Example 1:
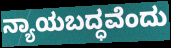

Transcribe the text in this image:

ನ್ಯಾಯಬದ್ಧವೆಂದು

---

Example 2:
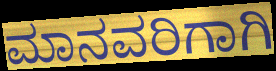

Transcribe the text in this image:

ಮಾನವರಿಗಾಗಿ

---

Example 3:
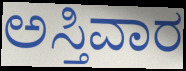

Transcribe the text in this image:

ಅಸ್ತಿವಾರ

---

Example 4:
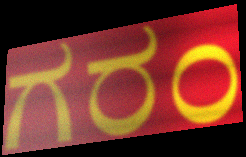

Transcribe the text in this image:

ಗರಂ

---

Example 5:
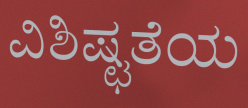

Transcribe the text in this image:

ವಿಶಿಷ್ಟತೆಯ